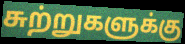
சுற்றுகளுக்கு